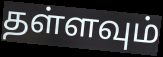
தள்ளவும்